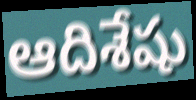
ఆదిశేషు